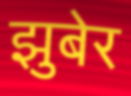
झुबेर